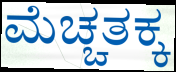
ಮೆಚ್ಚತಕ್ಕ